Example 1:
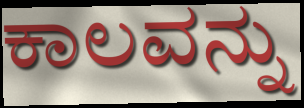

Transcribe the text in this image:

ಕಾಲವನ್ನು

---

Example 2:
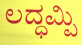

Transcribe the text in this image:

ಲದ್ಧಮ್ಪಿ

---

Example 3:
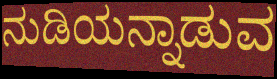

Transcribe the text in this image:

ನುಡಿಯನ್ನಾಡುವ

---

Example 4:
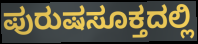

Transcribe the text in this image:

ಪುರುಷಸೂಕ್ತದಲ್ಲಿ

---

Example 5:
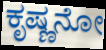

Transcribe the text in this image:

ಕೃಷ್ಣನೋ